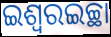
ଇଶ୍ୱରଇଚ୍ଛା